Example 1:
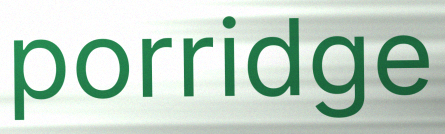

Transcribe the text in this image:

porridge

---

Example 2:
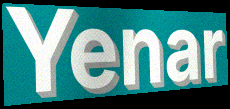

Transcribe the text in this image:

Yenar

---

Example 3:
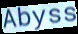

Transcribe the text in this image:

Abyss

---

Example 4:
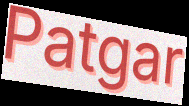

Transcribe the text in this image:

Patgar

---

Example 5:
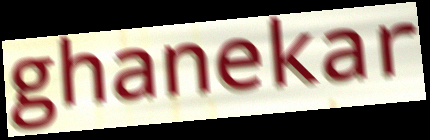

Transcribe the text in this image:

ghanekar